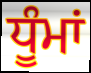
ਧੂੰਮਾਂ